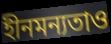
হীনমন্যতাও